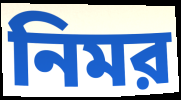
নিমর